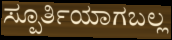
ಸ್ಪೂರ್ತಿಯಾಗಬಲ್ಲ